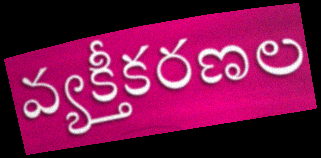
వ్యక్తీకరణల